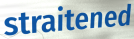
straitened